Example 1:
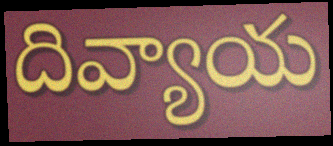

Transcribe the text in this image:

దివ్యాయ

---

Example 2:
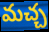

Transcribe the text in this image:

మచ్చ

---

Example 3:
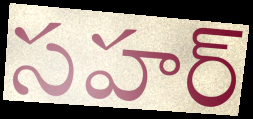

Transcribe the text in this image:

సహర్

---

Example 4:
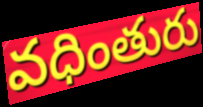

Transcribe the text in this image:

వధింతురు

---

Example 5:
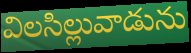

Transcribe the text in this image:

విలసిల్లువాడును